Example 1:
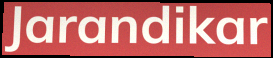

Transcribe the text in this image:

Jarandikar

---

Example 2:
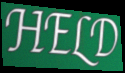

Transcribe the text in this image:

HELD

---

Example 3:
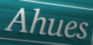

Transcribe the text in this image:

Ahues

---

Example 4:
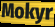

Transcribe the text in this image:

Mokyr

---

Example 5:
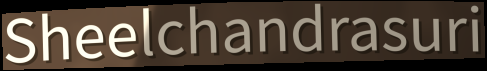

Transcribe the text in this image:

Sheelchandrasuri